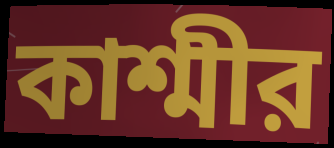
কাশ্মীর